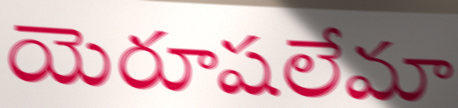
యెరూషలేమా